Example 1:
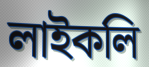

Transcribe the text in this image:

লাইকলি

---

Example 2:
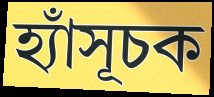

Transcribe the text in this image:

হ্যাঁসূচক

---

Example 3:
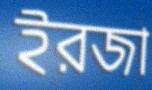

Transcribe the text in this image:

ইরজা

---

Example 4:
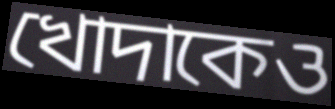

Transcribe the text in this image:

খোদাকেও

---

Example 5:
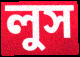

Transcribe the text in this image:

লুস